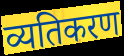
व्यतिकरण